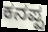
ಕನಪ್ಪ